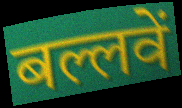
बल्लवें